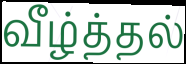
வீழ்த்தல்